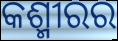
କଶ୍ମୀରର